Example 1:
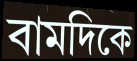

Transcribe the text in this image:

বামদিকে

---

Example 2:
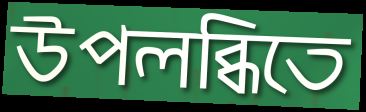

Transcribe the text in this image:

উপলব্ধিতে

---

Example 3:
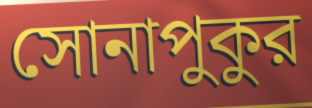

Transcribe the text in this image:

সোনাপুকুর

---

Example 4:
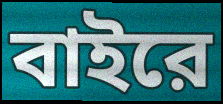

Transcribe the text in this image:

বাইরে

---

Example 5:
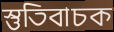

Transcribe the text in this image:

স্তুতিবাচক